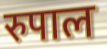
रुपाल